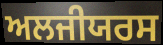
ਅਲਜੀਯਰਸ